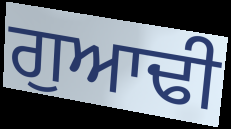
ਗੁਆਢੀ